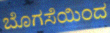
ಬೊಗಸೆಯಿಂದ